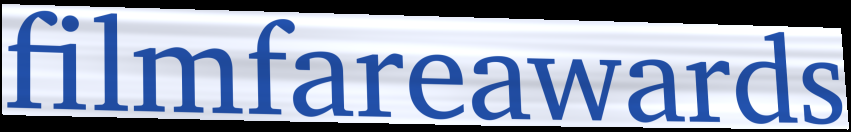
filmfareawards